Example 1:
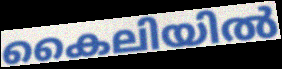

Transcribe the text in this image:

കൈലിയിൽ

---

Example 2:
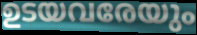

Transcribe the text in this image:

ഉടയവരേയും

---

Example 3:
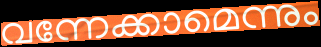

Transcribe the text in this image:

വന്നേക്കാമെന്നും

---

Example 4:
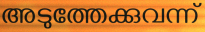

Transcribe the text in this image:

അടുത്തേക്കുവന്ന്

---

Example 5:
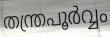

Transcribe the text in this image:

തന്ത്രപൂർവ്വം